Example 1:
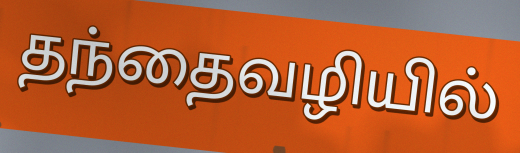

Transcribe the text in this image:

தந்தைவழியில்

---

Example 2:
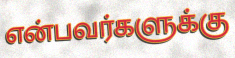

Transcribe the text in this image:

என்பவர்களுக்கு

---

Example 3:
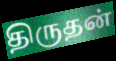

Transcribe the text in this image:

திருதன்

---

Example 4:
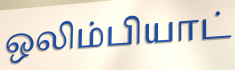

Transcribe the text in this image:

ஒலிம்பியாட்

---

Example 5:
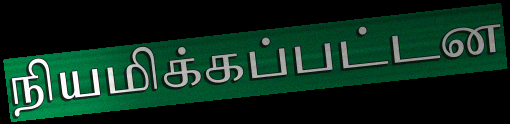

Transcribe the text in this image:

நியமிக்கப்பட்டன